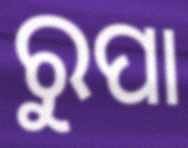
ରୁପା